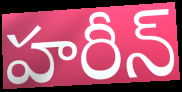
హరీన్